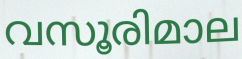
വസൂരിമാല